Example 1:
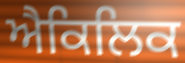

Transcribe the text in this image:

ਐਕਿਲਿਕ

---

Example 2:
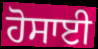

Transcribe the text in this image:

ਹੋਸਾਈ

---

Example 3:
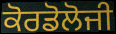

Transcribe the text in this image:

ਕੋਰਡੋਲੋਜੀ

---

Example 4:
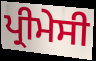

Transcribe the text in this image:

ਪ੍ਰੀਮੇਸੀ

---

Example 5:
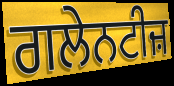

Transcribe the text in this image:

ਗਲੇਨਟੀਜ਼